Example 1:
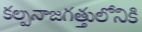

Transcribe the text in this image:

కల్పనాజగత్తులోనికి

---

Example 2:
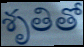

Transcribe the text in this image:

శృతితో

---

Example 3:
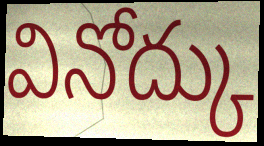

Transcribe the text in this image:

వినోద్కు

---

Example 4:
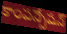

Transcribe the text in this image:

కాంపన్సేషన్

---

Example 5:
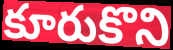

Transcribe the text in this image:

కూరుకొని